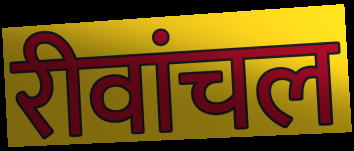
रीवांचल